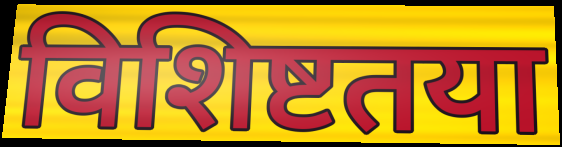
विशिष्टतया